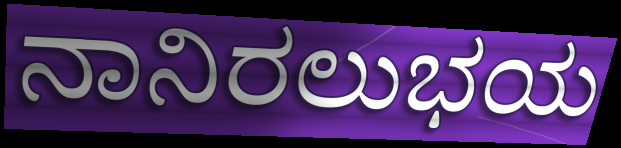
ನಾನಿರಲುಭಯ